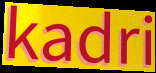
kadri